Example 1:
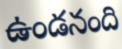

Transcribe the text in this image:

ఉండనంది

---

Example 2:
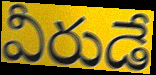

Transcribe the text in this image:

వీరుడే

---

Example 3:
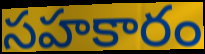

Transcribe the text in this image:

సహకారం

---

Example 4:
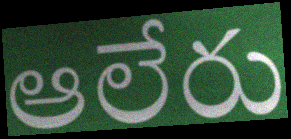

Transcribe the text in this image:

ఆలేరు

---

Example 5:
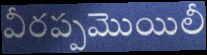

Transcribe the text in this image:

వీరప్పమొయిలీ